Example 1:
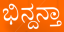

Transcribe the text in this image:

ಭಿನ್ದನ್ತಾ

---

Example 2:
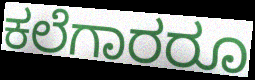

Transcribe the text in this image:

ಕಲೆಗಾರರೂ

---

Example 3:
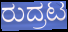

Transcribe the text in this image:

ರುದ್ರಟ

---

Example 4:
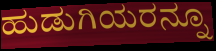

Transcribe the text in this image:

ಹುಡುಗಿಯರನ್ನೂ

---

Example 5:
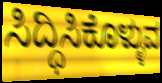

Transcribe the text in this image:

ಸಿದ್ಧಿಸಿಕೊಳ್ಳುವ